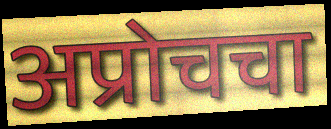
अप्रोचचा